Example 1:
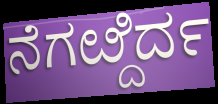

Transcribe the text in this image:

ನೆಗೞ್ದಿರ್ದ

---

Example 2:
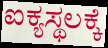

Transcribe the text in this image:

ಐಕ್ಯಸ್ಥಲಕ್ಕೆ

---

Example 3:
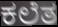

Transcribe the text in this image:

ಕಲೆತ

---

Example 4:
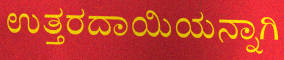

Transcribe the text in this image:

ಉತ್ತರದಾಯಿಯನ್ನಾಗಿ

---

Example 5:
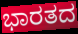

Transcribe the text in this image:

ಭಾರತದ